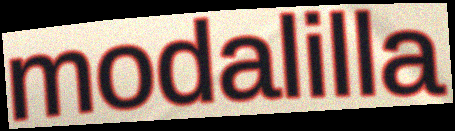
modalilla